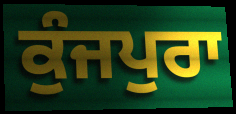
ਕੁੰਜਪੁਰਾ